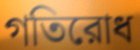
গতিরোধ